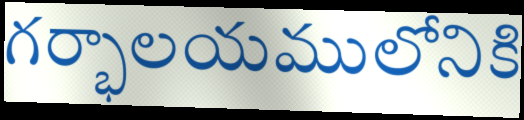
గర్భాలయములోనికి